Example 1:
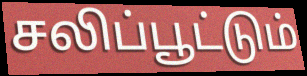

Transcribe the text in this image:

சலிப்பூட்டும்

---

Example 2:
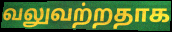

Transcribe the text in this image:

வலுவற்றதாக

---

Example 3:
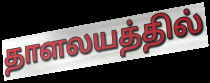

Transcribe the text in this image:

தாளலயத்தில்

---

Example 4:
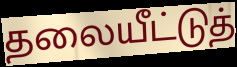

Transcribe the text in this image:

தலையீட்டுத்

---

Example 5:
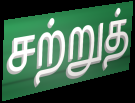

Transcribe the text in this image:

சற்றுத்